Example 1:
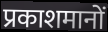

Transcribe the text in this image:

प्रकाशमानों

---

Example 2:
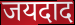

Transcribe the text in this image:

जयदाद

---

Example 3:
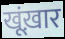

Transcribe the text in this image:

खूंख़ार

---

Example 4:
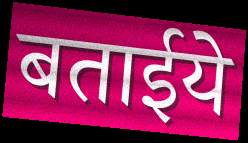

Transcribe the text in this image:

बताईये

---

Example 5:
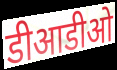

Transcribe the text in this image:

डीआडीओ